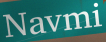
Navmi